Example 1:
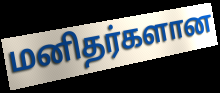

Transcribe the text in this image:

மனிதர்களான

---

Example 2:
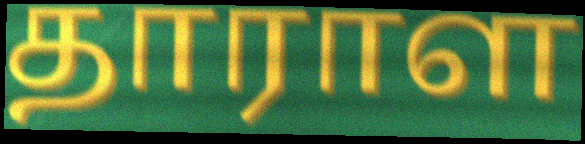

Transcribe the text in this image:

தாராள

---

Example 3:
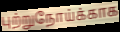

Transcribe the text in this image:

புற்றுநோய்க்காக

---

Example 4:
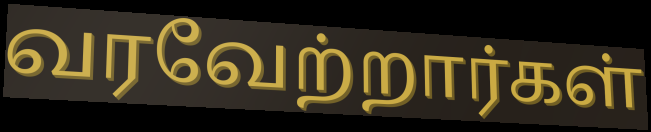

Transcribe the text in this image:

வரவேற்றார்கள்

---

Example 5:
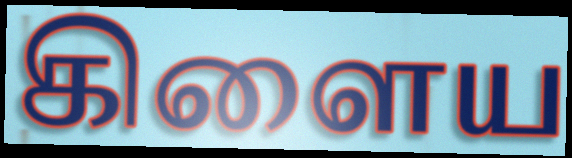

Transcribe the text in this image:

கிளைய